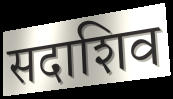
सदाशिव